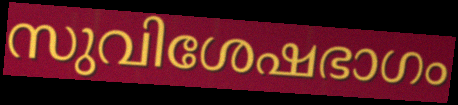
സുവിശേഷഭാഗം